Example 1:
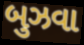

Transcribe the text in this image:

બુઝવા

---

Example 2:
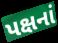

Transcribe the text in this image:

પક્ષનાં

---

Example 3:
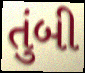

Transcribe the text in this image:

તુંબી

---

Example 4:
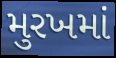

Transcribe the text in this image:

મુરખમાં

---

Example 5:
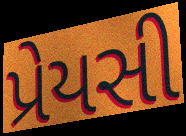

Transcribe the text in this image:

પ્રેયસી